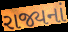
રાજ્યનાં